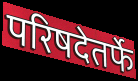
परिषदेतर्फे